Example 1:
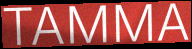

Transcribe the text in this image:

TAMMA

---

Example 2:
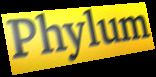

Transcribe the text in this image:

Phylum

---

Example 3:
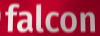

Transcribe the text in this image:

falcon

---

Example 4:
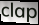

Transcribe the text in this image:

clap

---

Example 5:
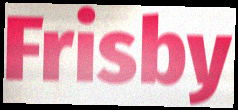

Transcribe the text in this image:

Frisby